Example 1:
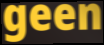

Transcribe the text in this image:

geen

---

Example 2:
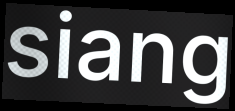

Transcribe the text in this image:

siang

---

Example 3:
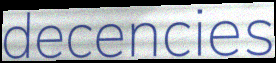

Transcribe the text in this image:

decencies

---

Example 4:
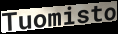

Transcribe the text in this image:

Tuomisto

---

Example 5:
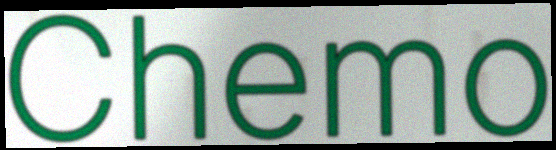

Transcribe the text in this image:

Chemo